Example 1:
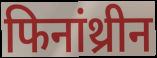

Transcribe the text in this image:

फिनांथ्रीन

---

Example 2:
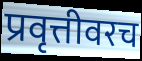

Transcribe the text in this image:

प्रवृत्तीवरच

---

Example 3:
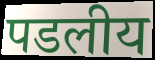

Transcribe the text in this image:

पडलीय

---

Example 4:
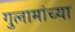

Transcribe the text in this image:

गुलामांच्या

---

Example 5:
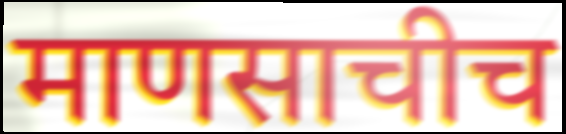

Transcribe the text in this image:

माणसाचीच